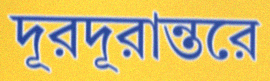
দূরদূরান্তরে